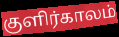
குளிர்காலம்